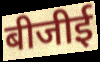
बीजीई